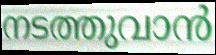
നടത്തുവാൻ